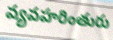
వ్యవహరింతురు